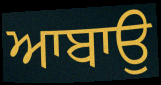
ਆਬਾਉ